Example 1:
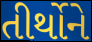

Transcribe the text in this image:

તીર્થોને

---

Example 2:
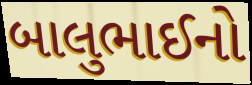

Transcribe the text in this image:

બાલુભાઈનો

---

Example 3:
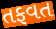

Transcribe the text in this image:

તફવત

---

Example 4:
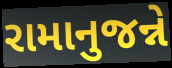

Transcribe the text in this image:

રામાનુજન્ને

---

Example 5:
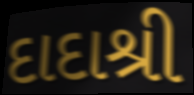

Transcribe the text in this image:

દાદાશ્રી